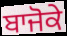
ਬਾਜੋਕੇ